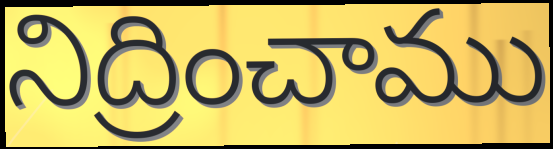
నిద్రించాము